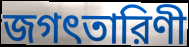
জগৎতারিণী